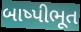
બાષ્પીભૂત